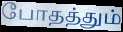
போதத்தும்